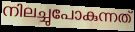
നിലച്ചുപോകുന്നത്